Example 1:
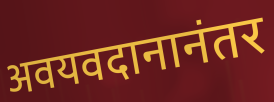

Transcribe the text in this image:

अवयवदानानंतर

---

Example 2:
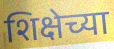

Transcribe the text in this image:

शिक्षेच्या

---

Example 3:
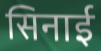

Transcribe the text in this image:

सिनाई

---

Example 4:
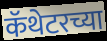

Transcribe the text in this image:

कॅथेटरच्या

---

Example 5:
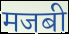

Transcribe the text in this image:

मजबी